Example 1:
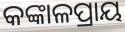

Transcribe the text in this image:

କଙ୍କାଳପ୍ରାୟ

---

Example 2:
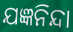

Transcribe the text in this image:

ଯଜ୍ଞନିନ୍ଦା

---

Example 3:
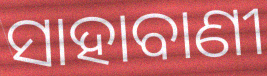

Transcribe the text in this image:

ସାହାବାଣୀ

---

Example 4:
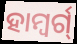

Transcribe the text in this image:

ହାମ୍ବର୍ଗ୍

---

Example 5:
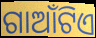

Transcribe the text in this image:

ଗାଆଁଟିଏ